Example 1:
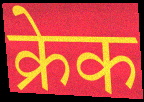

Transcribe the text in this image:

क्रेक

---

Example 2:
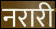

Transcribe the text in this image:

नरारी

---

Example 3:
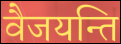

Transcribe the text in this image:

वैजयन्ति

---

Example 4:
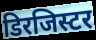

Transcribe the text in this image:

डिरजिस्टर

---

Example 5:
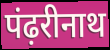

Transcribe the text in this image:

पंढ़रीनाथ